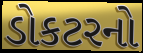
ડોકટરનો